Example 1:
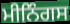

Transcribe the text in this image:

ਮੀਨਿੰਗਸ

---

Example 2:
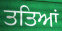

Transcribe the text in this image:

ਤਤਿਆਂ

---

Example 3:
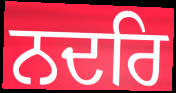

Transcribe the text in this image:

ਨਦਰਿ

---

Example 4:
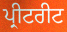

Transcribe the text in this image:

ਪ੍ਰੀਟਰੀਟ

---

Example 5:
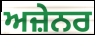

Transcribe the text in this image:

ਅਜ਼ੇਨਰ